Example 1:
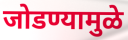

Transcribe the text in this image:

जोडण्यामुळे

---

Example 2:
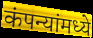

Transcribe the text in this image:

कंपन्यांमध्ये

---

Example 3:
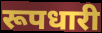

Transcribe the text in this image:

रूपधारी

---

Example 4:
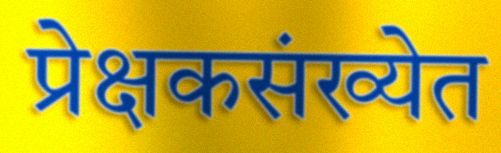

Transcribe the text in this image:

प्रेक्षकसंख्येत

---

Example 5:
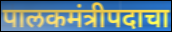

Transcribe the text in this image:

पालकमंत्रीपदाचा